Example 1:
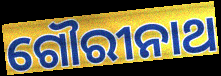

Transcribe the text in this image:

ଗୌରୀନାଥ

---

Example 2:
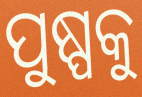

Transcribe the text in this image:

ପୁଷ୍ପକୁ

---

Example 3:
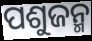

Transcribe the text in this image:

ପଶୁଜନ୍ମ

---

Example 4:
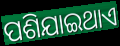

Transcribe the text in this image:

ପଶିଯାଇଥାଏ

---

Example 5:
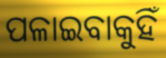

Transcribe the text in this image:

ପଳାଇବାକୁହିଁ